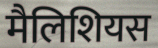
मैलिशियस